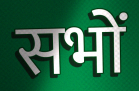
सभों